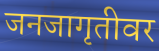
जनजागृतीवर